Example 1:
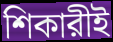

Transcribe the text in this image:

শিকারীই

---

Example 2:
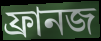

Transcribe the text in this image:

ফ্রানজ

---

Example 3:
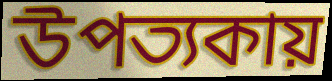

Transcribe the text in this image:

উপত্যকায়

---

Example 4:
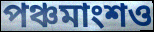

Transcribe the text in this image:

পঞ্চমাংশও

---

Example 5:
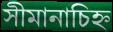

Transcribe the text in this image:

সীমানাচিহ্ন